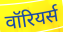
वॉरियर्स